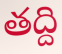
తద్ది